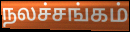
நலச்சங்கம்